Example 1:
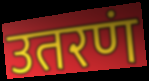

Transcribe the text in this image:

उतरणं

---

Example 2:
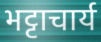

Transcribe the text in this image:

भट्टाचार्य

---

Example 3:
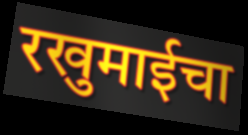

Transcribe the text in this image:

रखुमाईचा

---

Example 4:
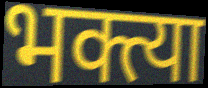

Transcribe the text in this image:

भक्त्या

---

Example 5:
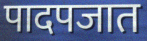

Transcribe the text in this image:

पादपजात